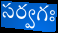
సర్వగః